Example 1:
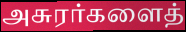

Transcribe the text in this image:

அசுரர்களைத்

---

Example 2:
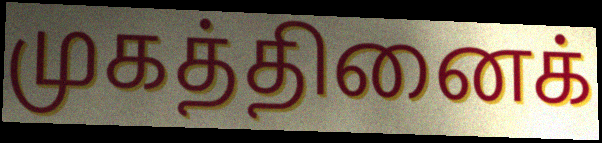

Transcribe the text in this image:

முகத்தினைக்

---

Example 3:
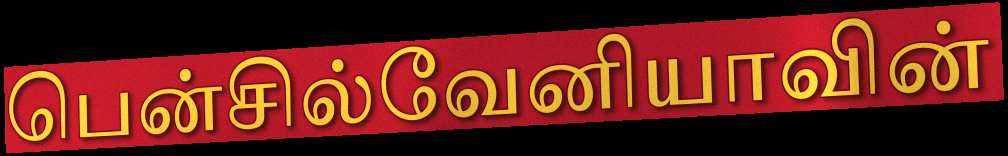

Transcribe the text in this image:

பென்சில்வேனியாவின்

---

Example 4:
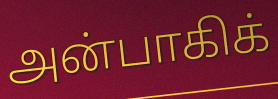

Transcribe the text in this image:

அன்பாகிக்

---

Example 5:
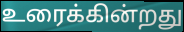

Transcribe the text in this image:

உரைக்கின்றது